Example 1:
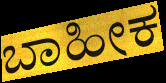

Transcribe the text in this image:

ಬಾಹೀಕ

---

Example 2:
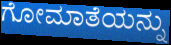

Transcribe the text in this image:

ಗೋಮಾತೆಯನ್ನು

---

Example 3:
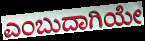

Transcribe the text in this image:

ಎಂಬುದಾಗಿಯೇ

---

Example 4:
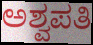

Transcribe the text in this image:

ಅಶ್ವಪತಿ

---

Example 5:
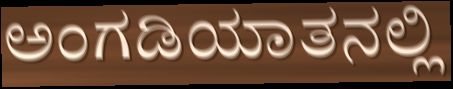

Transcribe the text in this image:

ಅಂಗಡಿಯಾತನಲ್ಲಿ